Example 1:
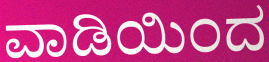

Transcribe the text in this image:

ವಾಡಿಯಿಂದ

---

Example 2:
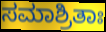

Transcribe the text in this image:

ಸಮಾಶ್ರಿತಾಃ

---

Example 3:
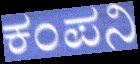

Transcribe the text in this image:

ಕಂಪನಿ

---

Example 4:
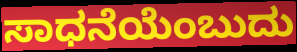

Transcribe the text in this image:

ಸಾಧನೆಯೆಂಬುದು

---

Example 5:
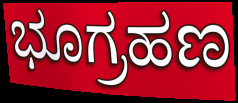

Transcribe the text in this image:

ಭೂಗ್ರಹಣ